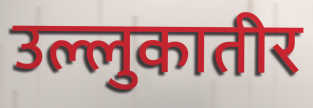
उल्लुकातीर